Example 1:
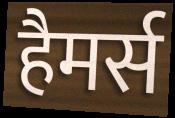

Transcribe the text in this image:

हैमर्स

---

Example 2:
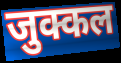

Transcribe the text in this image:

जुक्कल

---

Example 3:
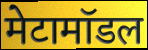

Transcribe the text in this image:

मेटामॉडल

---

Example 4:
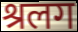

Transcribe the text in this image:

श्रलग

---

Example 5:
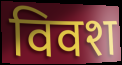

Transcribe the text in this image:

विवश